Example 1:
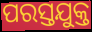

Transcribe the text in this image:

ପରସ୍ତଯୁକ୍ତ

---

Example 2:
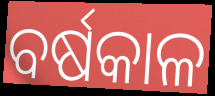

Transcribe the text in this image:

ବର୍ଷକାଳ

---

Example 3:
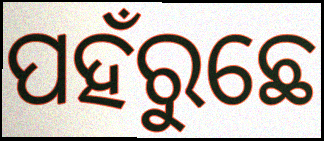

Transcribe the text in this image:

ପହଁରୁଛେ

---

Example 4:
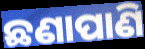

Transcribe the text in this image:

ଛଣାପାଣି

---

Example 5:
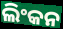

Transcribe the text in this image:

ଲିଂକନ